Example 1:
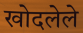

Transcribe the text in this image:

खोदलेले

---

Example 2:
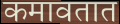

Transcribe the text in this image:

कमावतात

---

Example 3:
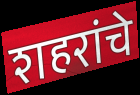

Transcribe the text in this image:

शहरांचे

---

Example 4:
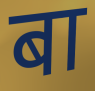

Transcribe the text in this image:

बा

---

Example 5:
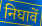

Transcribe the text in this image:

निघावें